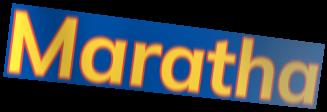
Maratha